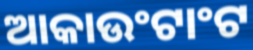
ଆକାଉଂଟାଂଟ